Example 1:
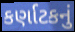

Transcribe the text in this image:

કર્ણાટકનું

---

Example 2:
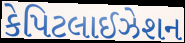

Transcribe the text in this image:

કેપિટલાઈઝેશન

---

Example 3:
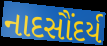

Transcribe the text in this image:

નાદસૌંદર્ય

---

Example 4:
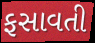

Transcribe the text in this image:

ફસાવતી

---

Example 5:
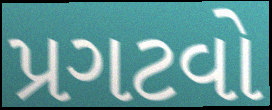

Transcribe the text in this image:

પ્રગટવો